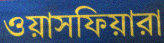
ওয়াসফিয়ারা